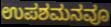
ಉಪಶಮನವೂ